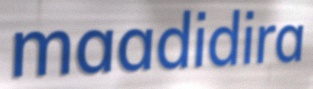
maadidira